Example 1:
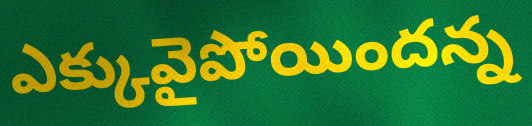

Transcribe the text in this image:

ఎక్కువైపోయిందన్న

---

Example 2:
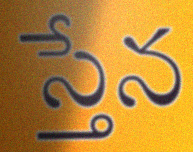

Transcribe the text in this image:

స్తేన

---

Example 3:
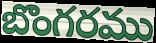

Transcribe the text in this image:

బొంగరము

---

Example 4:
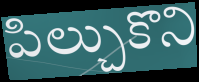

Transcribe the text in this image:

పిల్చుకొని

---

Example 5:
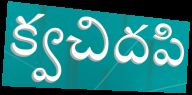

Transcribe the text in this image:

క్వచిదపి